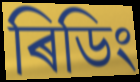
ৰিডিং